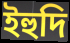
ইহুদি